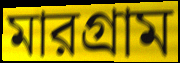
মারগ্রাম